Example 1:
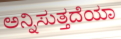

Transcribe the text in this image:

ಅನ್ನಿಸುತ್ತದೆಯಾ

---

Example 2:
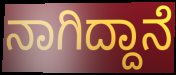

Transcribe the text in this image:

ನಾಗಿದ್ದಾನೆ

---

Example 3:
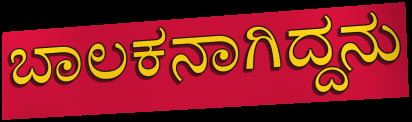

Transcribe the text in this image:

ಬಾಲಕನಾಗಿದ್ದನು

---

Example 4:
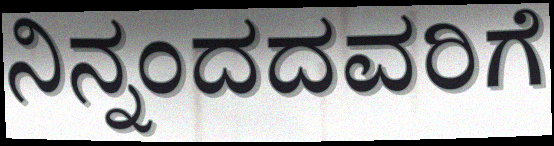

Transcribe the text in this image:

ನಿನ್ನಂದದವರಿಗೆ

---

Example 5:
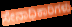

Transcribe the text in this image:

ಸೇನಾಧಿಕಾರಿಗಳು